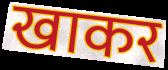
खाकर